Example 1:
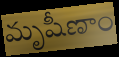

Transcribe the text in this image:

మృషీణాం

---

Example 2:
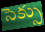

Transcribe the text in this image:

సెక్సు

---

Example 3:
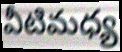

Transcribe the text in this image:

వీటిమధ్య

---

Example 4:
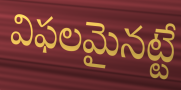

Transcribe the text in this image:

విఫలమైనట్టే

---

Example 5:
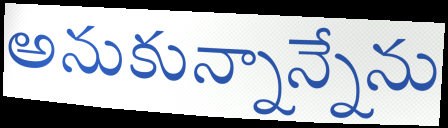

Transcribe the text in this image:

అనుకున్నాన్నేను